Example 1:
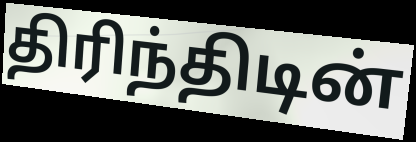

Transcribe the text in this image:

திரிந்திடின்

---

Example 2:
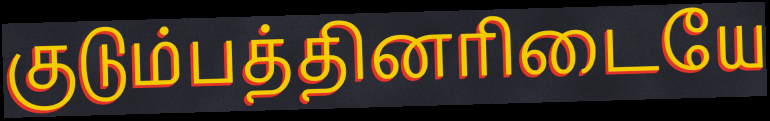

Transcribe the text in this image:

குடும்பத்தினரிடையே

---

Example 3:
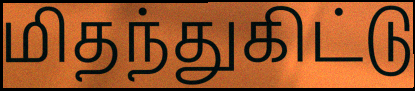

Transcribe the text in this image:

மிதந்துகிட்டு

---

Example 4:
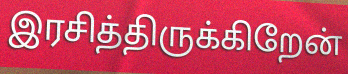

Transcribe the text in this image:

இரசித்திருக்கிறேன்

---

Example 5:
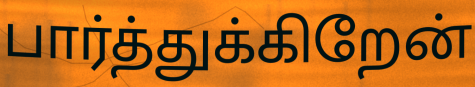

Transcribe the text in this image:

பார்த்துக்கிறேன்